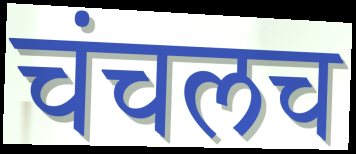
चंचलच